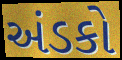
અંડકો